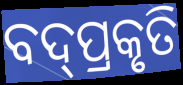
ବଦ୍‌ପ୍ରକୃତି